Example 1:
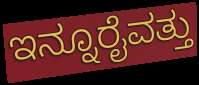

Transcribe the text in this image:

ಇನ್ನೂರೈವತ್ತು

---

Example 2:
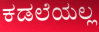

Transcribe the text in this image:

ಕಡಲೆಯಲ್ಲ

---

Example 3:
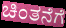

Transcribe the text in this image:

ಚಿಂತನೆಗೆ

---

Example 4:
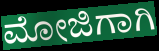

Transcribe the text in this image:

ಮೋಜಿಗಾಗಿ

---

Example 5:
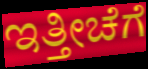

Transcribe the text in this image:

ಇತ್ತೀಚೆಗೆ